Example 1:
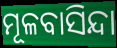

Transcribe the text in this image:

ମୂଳବାସିନ୍ଦା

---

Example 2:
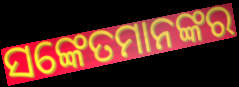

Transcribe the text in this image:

ସଙ୍କେତମାନଙ୍କର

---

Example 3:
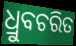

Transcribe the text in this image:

ଧ୍ରୁବଚରିତ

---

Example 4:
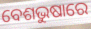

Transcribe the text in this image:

ବେଶଭୁଷାରେ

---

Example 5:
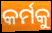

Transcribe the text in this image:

କର୍ମକୁ